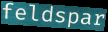
feldspar